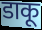
डाकू